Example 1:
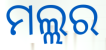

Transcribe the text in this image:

ମଲ୍ଲର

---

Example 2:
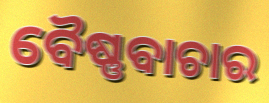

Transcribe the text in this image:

ବୈଷ୍ଣବାଚାର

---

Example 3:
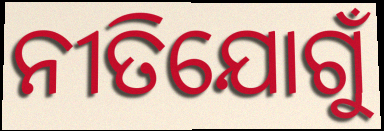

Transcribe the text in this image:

ନୀତିଯୋଗୁଁ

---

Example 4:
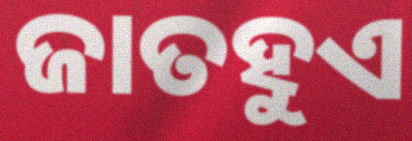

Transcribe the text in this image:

ଜାତହୁଏ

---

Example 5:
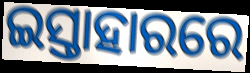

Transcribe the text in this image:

ଇସ୍ତାହାରରେ